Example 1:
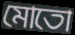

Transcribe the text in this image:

মোতো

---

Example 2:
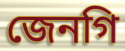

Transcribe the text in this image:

জেনগি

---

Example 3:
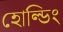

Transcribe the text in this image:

হোল্ডিং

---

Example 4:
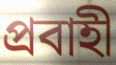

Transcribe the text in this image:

প্রবাহী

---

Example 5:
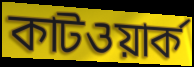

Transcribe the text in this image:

কাটওয়ার্ক